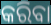
କରିବା